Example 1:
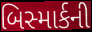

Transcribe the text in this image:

બિસ્માર્કની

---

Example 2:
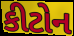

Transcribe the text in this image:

કીટોન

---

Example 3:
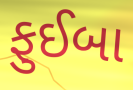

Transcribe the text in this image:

ફુઈબા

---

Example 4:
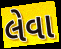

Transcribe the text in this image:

લેવા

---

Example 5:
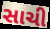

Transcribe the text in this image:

સાચી